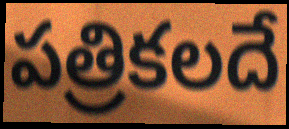
పత్రికలదే